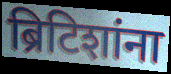
ब्रिटिशांना